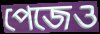
পেজেও